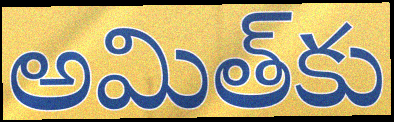
అమిత్‌కు